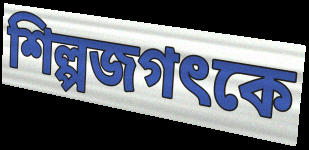
শিল্পজগৎকে